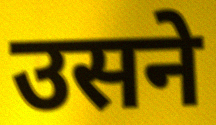
उसने